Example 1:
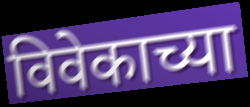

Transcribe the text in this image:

विवेकाच्या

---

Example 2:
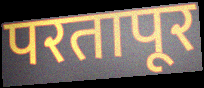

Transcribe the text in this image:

परतापूर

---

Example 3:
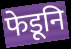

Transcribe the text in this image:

फेडूनि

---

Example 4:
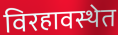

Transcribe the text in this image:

विरहावस्थेत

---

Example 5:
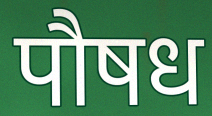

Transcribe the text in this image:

पौषध